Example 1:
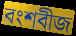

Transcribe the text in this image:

বংশবীজ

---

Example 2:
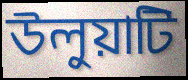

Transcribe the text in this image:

উলুয়াটি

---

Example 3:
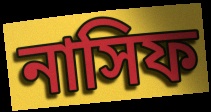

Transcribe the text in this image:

নাসিফ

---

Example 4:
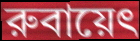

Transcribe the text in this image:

রুবায়েৎ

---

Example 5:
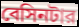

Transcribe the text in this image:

বেসিনটার